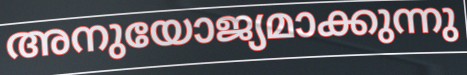
അനുയോജ്യമാക്കുന്നു